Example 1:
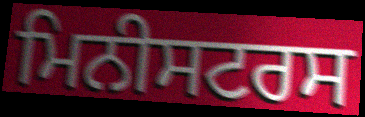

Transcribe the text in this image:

ਮਿਨੀਸਟਰਸ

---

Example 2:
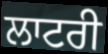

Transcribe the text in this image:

ਲਾਟਰੀ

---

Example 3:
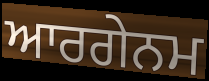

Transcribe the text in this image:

ਆਰਗੇਨਮ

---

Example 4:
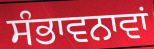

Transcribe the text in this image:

ਸੰਭਾਵਨਾਵਾਂ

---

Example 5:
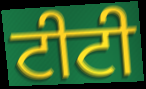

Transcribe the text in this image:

ਟੀਟੀ